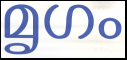
മൃഗം